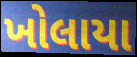
ખોલાયા